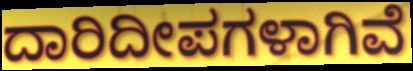
ದಾರಿದೀಪಗಳಾಗಿವೆ